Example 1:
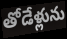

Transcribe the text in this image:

తోడేళ్లును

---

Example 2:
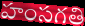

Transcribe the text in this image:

హంసగతి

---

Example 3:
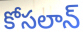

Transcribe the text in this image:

కోసలాన్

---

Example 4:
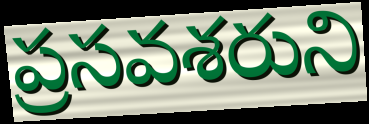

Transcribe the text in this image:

ప్రసవశరుని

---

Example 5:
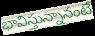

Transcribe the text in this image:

భావిస్తున్నానంటే